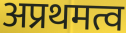
अप्रथमत्व